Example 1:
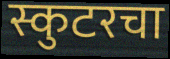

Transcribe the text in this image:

स्कुटरचा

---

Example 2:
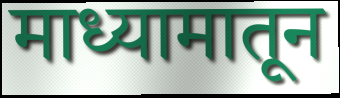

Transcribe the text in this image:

माध्यामातून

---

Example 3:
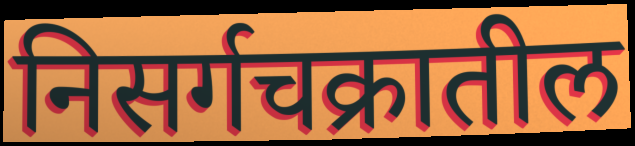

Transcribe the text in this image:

निसर्गचक्रातील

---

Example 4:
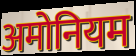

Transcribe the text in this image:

अमोनियम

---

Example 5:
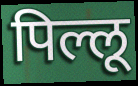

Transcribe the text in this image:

पिल्लू